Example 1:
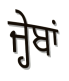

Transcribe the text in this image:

ਜ੍ਹੇਬਾਂ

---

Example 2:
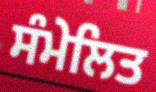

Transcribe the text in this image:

ਸੰਮੇਲਿਤ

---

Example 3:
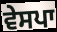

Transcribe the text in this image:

ਵੇਸਪਾ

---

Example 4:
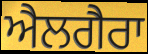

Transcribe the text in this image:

ਐਲਗੈਰਾ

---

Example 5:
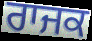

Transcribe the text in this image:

ਰਾਜਕ